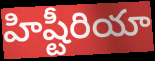
హిష్టీరియా